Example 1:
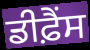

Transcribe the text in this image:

ਡੀਫ਼ੈਂਸ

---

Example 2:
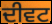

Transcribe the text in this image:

ਦੀਵਟ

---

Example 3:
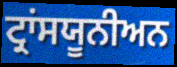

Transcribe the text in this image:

ਟ੍ਰਾਂਸਯੂਨੀਅਨ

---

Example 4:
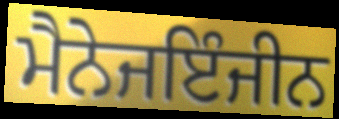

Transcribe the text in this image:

ਮੈਨੇਜਇੰਜੀਨ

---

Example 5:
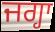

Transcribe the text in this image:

ਜਗ੍ਹਾ